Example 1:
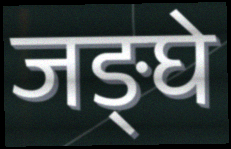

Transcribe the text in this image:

जङ्घे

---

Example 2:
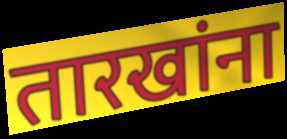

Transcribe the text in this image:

तारखांना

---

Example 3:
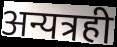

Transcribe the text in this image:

अन्यत्रही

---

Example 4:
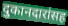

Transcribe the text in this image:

दुकानदारांसह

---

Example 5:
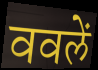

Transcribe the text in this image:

ववलें